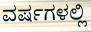
ವರ್ಷಗಳಲ್ಲಿ